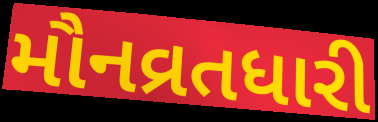
મૌનવ્રતધારી